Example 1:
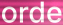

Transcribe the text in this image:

orde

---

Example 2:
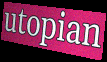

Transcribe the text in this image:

utopian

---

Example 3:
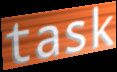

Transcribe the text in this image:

task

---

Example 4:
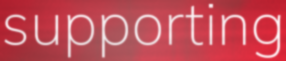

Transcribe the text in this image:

supporting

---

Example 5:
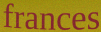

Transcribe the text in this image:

frances